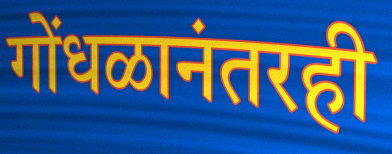
गोंधळानंतरही